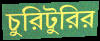
চুরিটুরির